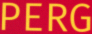
PERG